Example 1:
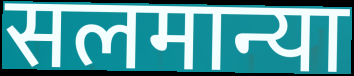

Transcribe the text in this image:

सलमान्या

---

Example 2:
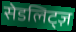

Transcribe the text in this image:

सेडलिट्ज़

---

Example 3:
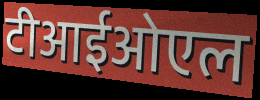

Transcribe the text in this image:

टीआईओएल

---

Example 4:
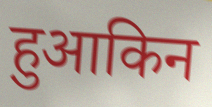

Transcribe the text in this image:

हुआकिन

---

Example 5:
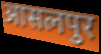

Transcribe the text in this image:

आसलपुर